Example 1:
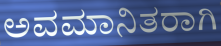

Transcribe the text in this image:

ಅವಮಾನಿತರಾಗಿ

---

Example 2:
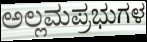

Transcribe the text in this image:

ಅಲ್ಲಮಪ್ರಭುಗಳ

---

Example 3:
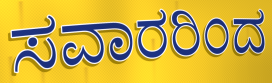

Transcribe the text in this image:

ಸವಾರರಿಂದ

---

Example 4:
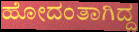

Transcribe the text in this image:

ಹೋದಂತಾಗಿದ್ದ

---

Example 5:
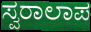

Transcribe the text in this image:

ಸ್ವರಾಲಾಪ